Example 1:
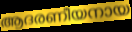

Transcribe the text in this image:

ആദരണീയനായ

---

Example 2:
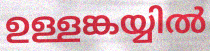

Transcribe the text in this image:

ഉള്ളങ്കയ്യിൽ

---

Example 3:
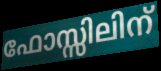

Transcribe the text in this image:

ഫോസ്സിലിന്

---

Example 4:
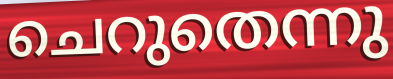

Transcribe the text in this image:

ചെറുതെന്നു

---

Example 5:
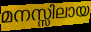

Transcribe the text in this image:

മനസ്സിലായ